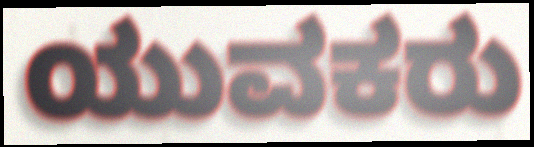
ಯುವಕರು